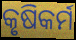
କୃଷିକର୍ମ